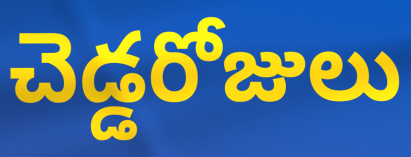
చెడ్డరోజులు